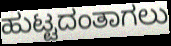
ಹುಟ್ಟದಂತಾಗಲು